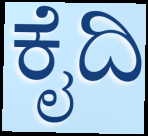
ಕೈದಿ